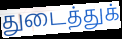
துடைத்துக்